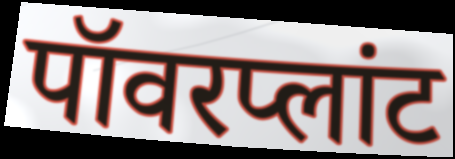
पॉवरप्लांट